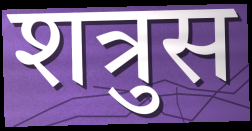
शत्रुस